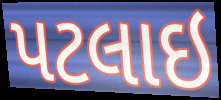
પટલાઇ